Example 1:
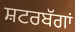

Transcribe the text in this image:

ਸ਼ਟਰਬੱਗਾਂ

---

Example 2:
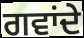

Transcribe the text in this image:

ਗਵਾਂਦੇ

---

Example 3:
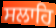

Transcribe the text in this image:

ਸਲਾਹਿ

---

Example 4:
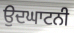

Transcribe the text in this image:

ਉਦਘਾਟਨੀ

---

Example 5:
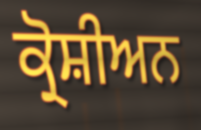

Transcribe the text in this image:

ਕ੍ਰੋਸ਼ੀਅਨ